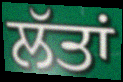
ਲੱਤਾਂ